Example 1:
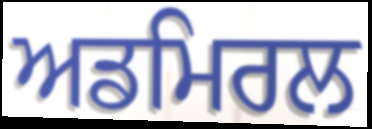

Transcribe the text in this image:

ਅਡਮਿਰਲ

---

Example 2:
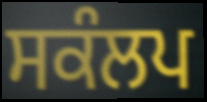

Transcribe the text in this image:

ਸਕੰਲਪ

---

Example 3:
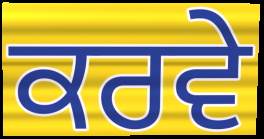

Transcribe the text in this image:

ਕਰਵੇ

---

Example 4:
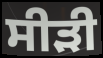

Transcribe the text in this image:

ਸੀੜੀ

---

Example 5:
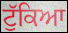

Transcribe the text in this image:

ਟੁੱਕਿਆ